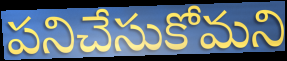
పనిచేసుకోమని